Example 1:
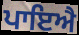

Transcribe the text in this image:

ਪਾਇਐ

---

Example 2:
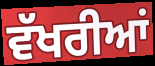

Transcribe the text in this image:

ਵੱਖਰੀਆਂ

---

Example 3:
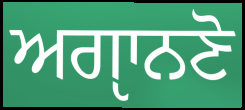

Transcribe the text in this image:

ਅਗੵਾਨਣੋ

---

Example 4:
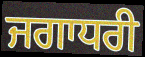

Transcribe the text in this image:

ਜਗਾਧਰੀ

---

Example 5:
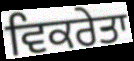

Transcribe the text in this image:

ਵਿਕਰੇਤਾ